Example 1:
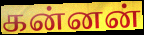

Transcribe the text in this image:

கன்னன்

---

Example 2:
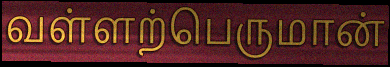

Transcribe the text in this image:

வள்ளற்பெருமான்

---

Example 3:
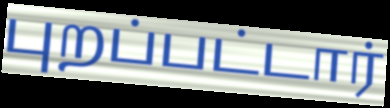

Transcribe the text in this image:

புறப்பட்டார்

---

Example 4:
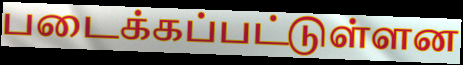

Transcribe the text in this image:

படைக்கப்பட்டுள்ளன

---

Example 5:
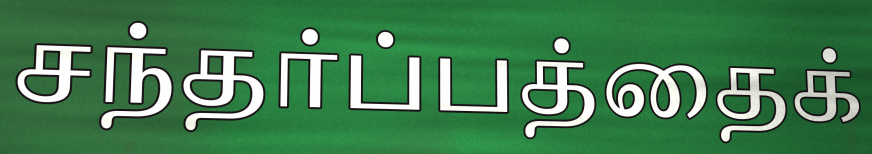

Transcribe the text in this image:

சந்தர்ப்பத்தைக்